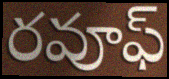
రవూఫ్